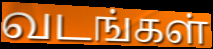
வடங்கள்